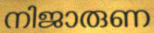
നിജാരുണ